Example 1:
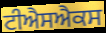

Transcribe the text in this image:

ਟੀਐਸਐਕਸ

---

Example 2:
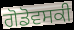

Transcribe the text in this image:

ਗੋਡੋਵਸਕੀ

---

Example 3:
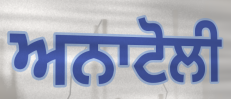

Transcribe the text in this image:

ਅਨਾਟੋਲੀ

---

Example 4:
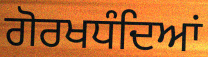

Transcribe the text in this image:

ਗੋਰਖਧੰਦਿਆਂ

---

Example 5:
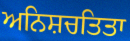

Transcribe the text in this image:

ਅਨਿਸ਼ਚਤਿਤਾ